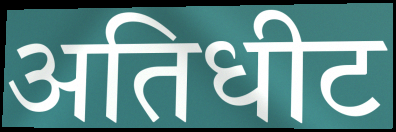
अतिधीट